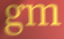
gm